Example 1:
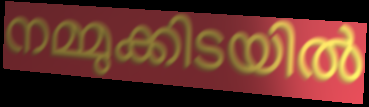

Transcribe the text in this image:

നമ്മുക്കിടയിൽ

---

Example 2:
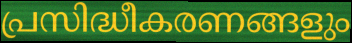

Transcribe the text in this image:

പ്രസിദ്ധീകരണങ്ങളും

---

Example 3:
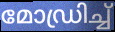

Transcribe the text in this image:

മോഡ്രിച്ച്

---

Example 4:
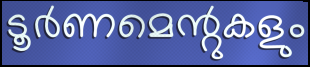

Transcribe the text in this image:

ടൂർണമെന്റുകളും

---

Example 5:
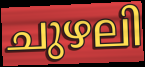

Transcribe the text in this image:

ചുഴലി